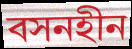
বসনহীন